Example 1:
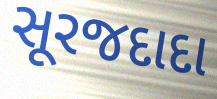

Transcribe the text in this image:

સૂરજદાદા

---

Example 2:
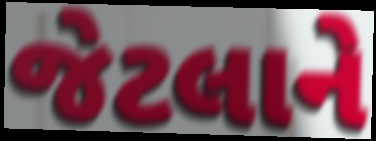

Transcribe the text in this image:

જેટલાને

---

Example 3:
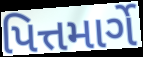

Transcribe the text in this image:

પિત્તમાર્ગે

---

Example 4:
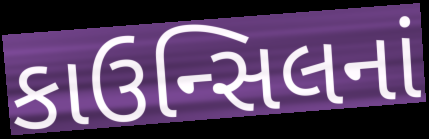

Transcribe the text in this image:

કાઉન્સિલનાં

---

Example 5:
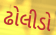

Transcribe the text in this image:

ઢોલીડો